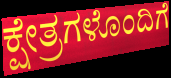
ಕ್ಷೇತ್ರಗಳೊಂದಿಗೆ